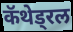
कॅथेड्रल